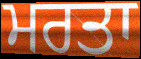
ਮਰਤਾ